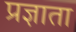
प्रज्ञाता